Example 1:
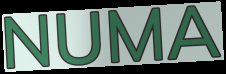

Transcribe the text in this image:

NUMA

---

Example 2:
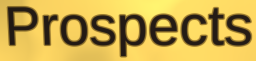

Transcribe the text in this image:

Prospects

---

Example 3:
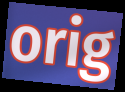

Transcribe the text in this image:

orig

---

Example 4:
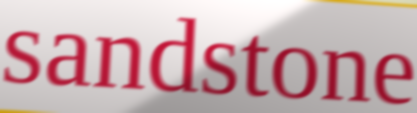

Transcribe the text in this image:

sandstone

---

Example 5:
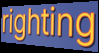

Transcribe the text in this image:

righting